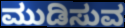
ಮುಡಿಸುವ